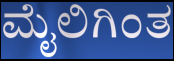
ಮೈಲಿಗಿಂತ